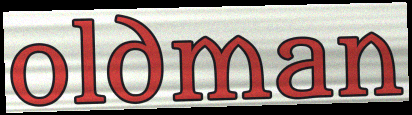
oldman